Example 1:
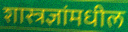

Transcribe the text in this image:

शास्त्रज्ञांमधील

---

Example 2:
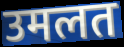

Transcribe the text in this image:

उमलत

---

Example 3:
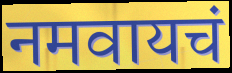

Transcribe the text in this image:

नमवायचं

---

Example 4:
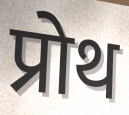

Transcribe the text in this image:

प्रोथ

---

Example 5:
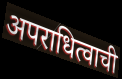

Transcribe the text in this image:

अपराधित्वाची